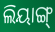
ଲିୟାଙ୍ଗ୍